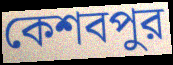
কেশবপুর